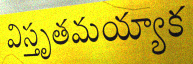
విస్తృతమయ్యాక